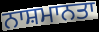
ਨਾਸ਼ਮਾਨਤਾ